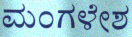
ಮಂಗಳೇಶ